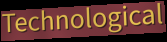
Technological